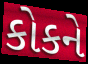
કોકને